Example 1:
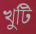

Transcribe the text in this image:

খুটি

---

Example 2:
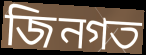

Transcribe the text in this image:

জিনগত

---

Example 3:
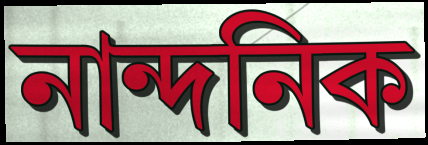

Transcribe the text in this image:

নান্দনিক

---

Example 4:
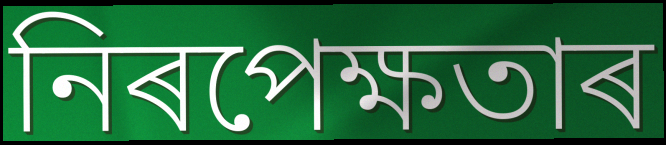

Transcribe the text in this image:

নিৰপেক্ষতাৰ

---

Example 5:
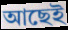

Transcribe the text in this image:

আছেই